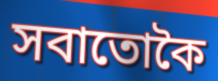
সবাতোকৈ